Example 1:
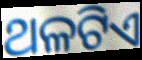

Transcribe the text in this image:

ଥଳଟିଏ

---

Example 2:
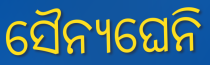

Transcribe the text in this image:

ସୈନ୍ୟଘେନି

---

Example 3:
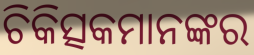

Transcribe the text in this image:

ଚିକିତ୍ସକମାନଙ୍କର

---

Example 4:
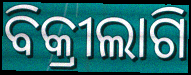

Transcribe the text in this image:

ବିକ୍ରୀଲାଗି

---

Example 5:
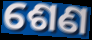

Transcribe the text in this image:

ଶେଣ